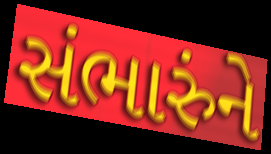
સંભારુંને